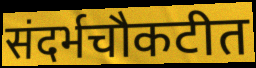
संदर्भचौकटीत